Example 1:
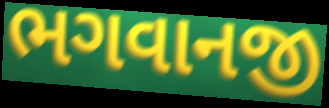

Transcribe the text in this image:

ભગવાનજી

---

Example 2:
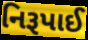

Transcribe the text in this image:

નિરૂપાઈ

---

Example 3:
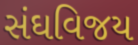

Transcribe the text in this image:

સંઘવિજય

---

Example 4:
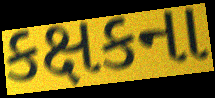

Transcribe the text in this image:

કક્ષકના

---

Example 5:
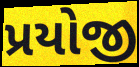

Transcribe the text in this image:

પ્રયોજી